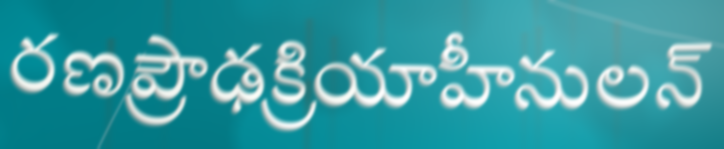
రణప్రౌఢక్రియాహీనులన్